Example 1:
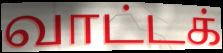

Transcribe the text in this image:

வாட்டக்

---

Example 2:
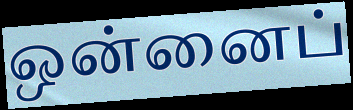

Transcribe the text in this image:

ஒன்னைப்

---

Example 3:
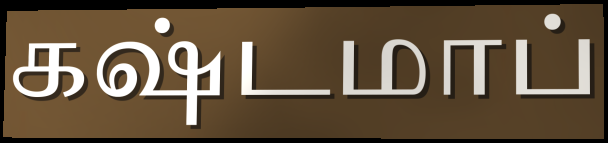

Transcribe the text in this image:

கஷ்டமாப்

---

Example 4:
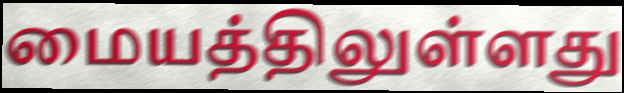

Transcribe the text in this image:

மையத்திலுள்ளது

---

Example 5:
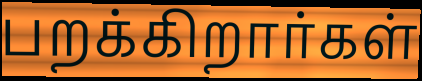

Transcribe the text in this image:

பறக்கிறார்கள்